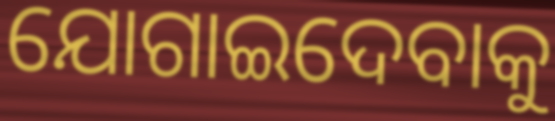
ଯୋଗାଇଦେବାକୁ